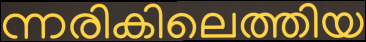
ന്നരികിലെത്തിയ